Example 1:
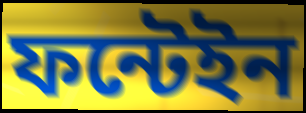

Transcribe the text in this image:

ফন্টেইন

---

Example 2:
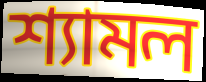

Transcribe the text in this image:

শ্যামল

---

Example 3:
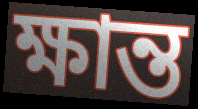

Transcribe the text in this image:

ক্ষান্ত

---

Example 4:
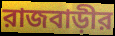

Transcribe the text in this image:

রাজবাড়ীর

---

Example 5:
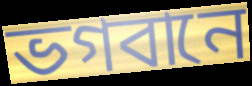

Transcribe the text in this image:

ভগবানে